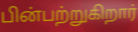
பின்பற்றுகிறார்